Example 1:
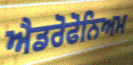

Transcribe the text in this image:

ਐਡਰੋਫੋਨਿਅਮ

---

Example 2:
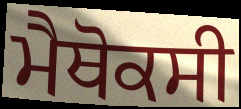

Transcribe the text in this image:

ਮੈਥੋਕਸੀ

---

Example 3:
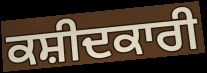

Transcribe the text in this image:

ਕਸ਼ੀਦਕਾਰੀ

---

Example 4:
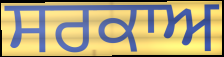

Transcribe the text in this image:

ਸਰਕਾਅ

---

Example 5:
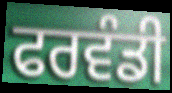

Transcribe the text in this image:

ਫਰਵੰਡੀ